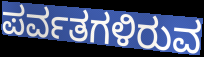
ಪರ್ವತಗಳಿರುವ